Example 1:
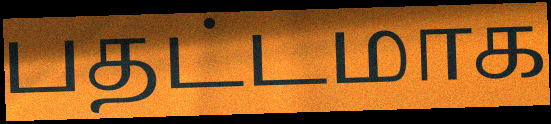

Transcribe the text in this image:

பதட்டமாக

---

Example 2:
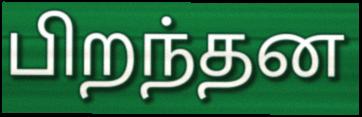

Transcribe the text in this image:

பிறந்தன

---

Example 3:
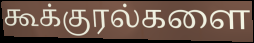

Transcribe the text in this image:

கூக்குரல்களை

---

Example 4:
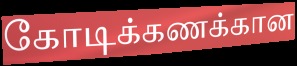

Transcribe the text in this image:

கோடிக்கணக்கான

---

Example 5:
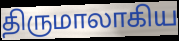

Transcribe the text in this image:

திருமாலாகிய